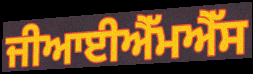
ਜੀਆਈਐੱਮਐੱਸ